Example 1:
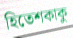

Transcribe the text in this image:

হিতেশকাকু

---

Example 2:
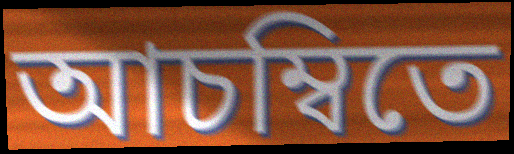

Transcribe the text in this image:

আচম্বিতে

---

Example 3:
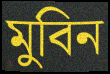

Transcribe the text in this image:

মুবিন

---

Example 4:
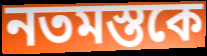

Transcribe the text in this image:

নতমস্তকে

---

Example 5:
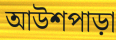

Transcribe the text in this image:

আউশপাড়া